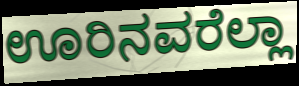
ಊರಿನವರೆಲ್ಲಾ